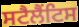
ਸਟੈਲੈਂਟਿਸ